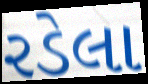
રડેલા